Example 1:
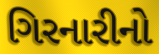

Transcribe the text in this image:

ગિરનારીનો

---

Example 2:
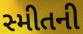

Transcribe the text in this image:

સ્મીતની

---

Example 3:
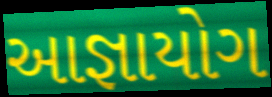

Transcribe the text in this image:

આજ્ઞાયોગ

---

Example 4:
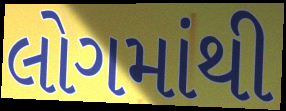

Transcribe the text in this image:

લોગમાંથી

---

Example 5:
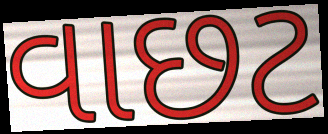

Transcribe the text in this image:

વાછટ